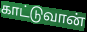
காட்டுவான்